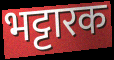
भट्टारक